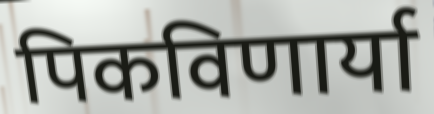
पिकविणार्या